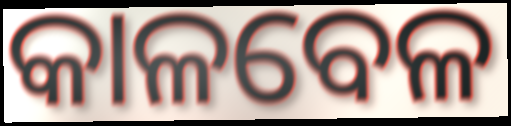
କାଳବେଳ